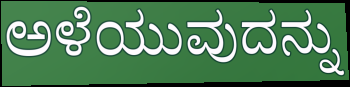
ಅಳೆಯುವುದನ್ನು